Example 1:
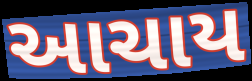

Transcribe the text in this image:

આચાય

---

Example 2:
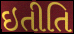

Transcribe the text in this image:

ઇતીતિ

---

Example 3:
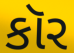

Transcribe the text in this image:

કૉર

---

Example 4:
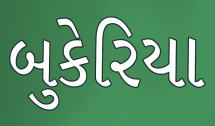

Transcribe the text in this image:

બુકેરિયા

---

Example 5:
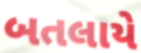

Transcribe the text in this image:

બતલાયે